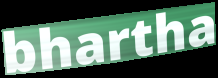
bhartha